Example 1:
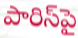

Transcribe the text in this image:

పారిస్‌పై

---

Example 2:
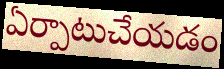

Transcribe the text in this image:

ఏర్పాటుచేయడం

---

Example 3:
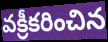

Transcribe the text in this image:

వక్రీకరించిన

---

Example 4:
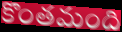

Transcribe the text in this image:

కొంతమంది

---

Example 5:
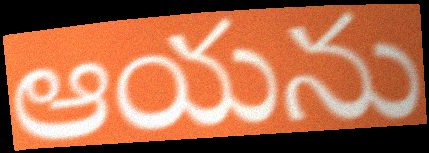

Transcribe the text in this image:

ఆయను